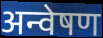
अन्वेषण